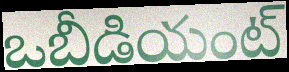
ఒబీడియంట్